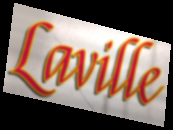
Laville